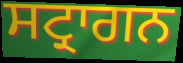
ਸਟ੍ਰਾਗਨ